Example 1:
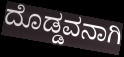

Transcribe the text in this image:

ದೊಡ್ಡವನಾಗಿ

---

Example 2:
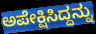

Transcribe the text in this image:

ಅಪೇಕ್ಷಿಸಿದ್ದನ್ನು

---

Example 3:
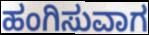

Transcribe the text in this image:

ಹಂಗಿಸುವಾಗ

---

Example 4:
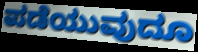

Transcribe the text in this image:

ಪಡೆಯುವುದೂ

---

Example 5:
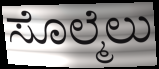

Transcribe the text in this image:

ಸೊಲ್ಮೆಲು